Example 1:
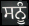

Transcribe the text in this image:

ਸਨੂੰ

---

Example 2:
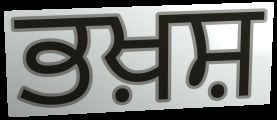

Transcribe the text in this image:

ਭਖ਼ਸ਼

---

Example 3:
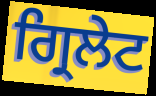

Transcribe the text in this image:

ਗ੍ਰਿਲੇਟ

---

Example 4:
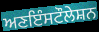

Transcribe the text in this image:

ਅਣਇੰਸਟੌਲੇਸ਼ਨ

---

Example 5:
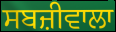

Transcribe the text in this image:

ਸਬਜ਼ੀਵਾਲਾ